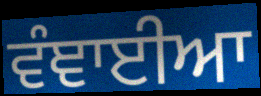
ਵੰਞਾਈਆ